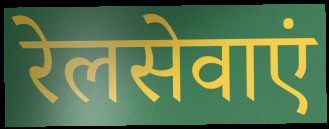
रेलसेवाएं